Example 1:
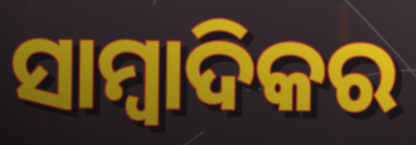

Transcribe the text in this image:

ସାମ୍ବାଦିକର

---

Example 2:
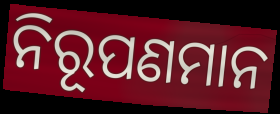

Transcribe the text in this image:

ନିରୂପଣମାନ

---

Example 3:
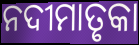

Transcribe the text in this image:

ନଦୀମାତୃକା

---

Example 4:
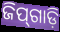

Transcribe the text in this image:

ଜିପ୍‌ଗାଡ଼ି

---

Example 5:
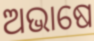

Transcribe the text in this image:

ଅଭାଷେ